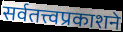
सर्वतत्त्वप्रकाशने